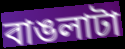
বাঙলাটা